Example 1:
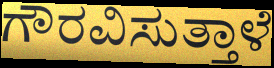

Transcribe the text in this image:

ಗೌರವಿಸುತ್ತಾಳೆ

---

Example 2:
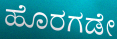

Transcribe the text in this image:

ಹೊರಗಡೇ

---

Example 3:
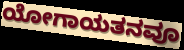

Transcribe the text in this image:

ಯೋಗಾಯತನವೂ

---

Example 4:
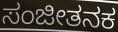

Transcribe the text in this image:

ಸಂಜೀತನಕ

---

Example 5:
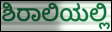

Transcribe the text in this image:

ಶಿರಾಲಿಯಲ್ಲಿ